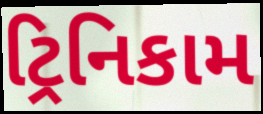
ટ્રિનિકામ